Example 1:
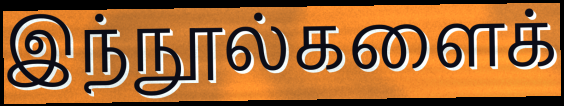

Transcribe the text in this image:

இந்நூல்களைக்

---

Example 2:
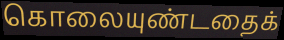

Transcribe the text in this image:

கொலையுண்டதைக்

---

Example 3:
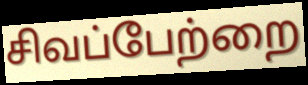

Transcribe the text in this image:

சிவப்பேற்றை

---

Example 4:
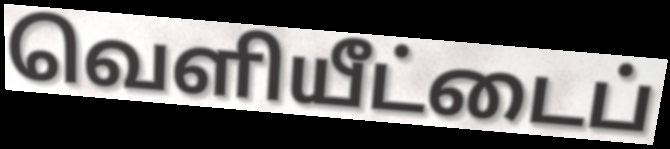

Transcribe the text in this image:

வெளியீட்டைப்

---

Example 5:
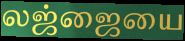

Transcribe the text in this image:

லஜ்ஜையை